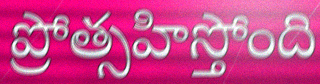
ప్రోత్సహిస్తోంది